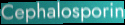
Cephalosporin